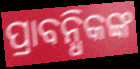
ପ୍ରାବନ୍ଧିକଙ୍କ